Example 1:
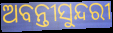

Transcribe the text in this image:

ଅବନ୍ତୀସୁନ୍ଦରୀ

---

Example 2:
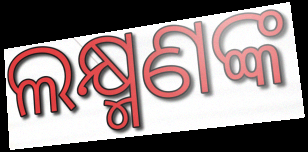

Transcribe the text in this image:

ଲକ୍ଷ୍ମଣଙ୍କ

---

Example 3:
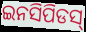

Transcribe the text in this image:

ଇନସିପିଡସ୍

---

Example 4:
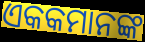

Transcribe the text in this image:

ଏକକମାନଙ୍କ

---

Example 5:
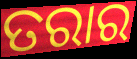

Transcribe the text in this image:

ତରାର